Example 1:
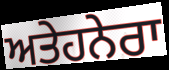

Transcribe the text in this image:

ਅਤੇਹਨੇਰਾ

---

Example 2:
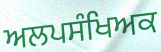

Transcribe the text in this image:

ਅਲਪਸੰਖਿਅਕ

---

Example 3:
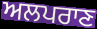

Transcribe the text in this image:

ਅਲਪਰਾਣ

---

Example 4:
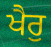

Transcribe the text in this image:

ਖੈਰੁ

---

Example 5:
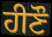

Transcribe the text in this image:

ਹੀਣੌ